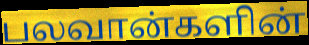
பலவான்களின்